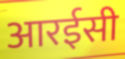
आरईसी